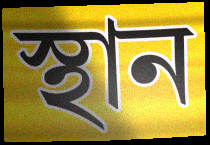
স্থান